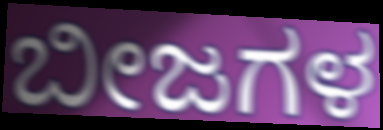
ಬೀಜಗಳ